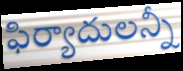
ఫిర్యాదులన్నీ